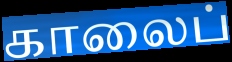
காலைப்